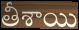
తీశాయి